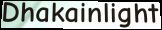
Dhakainlight